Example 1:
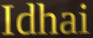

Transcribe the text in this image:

Idhai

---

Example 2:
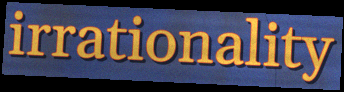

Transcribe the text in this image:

irrationality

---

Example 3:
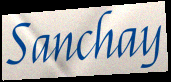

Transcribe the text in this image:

Sanchay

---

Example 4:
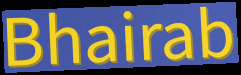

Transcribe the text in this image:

Bhairab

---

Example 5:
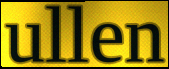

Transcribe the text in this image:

ullen